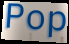
Pop